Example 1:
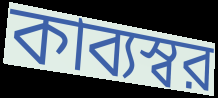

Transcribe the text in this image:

কাব্যস্বর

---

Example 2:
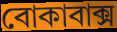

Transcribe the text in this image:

বোকাবাক্স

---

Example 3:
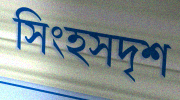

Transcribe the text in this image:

সিংহসদৃশ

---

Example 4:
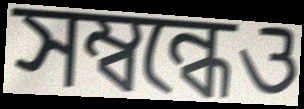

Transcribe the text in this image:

সম্বন্ধেও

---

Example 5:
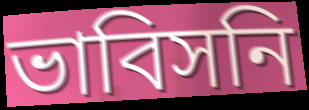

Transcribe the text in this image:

ভাবিসনি